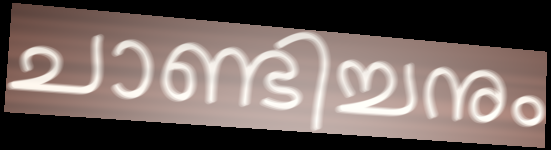
ചാണ്ടിച്ചനും